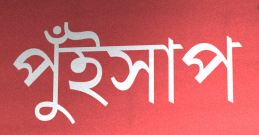
পুঁইসাপ